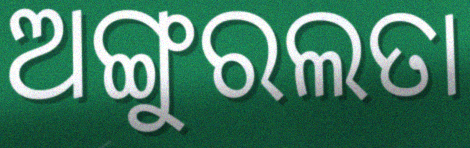
ଅଙ୍ଗୁରଲତା